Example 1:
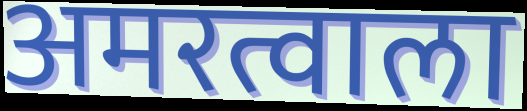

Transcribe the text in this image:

अमरत्वाला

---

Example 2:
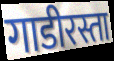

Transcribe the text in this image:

गाडीरस्ता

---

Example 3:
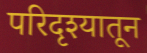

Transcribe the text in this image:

परिदृश्यातून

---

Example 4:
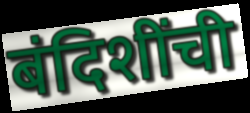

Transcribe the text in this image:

बंदिशींची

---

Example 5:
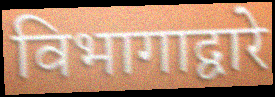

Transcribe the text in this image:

विभागाद्वारे